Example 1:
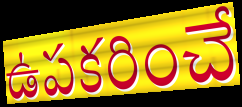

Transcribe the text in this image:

ఉపకరించే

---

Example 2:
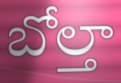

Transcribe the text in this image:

బోల్తా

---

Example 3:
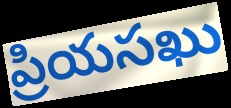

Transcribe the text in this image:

ప్రియసఖు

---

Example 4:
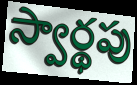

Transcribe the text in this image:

స్వార్థపు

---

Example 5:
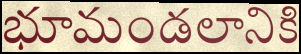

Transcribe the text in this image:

భూమండలానికి